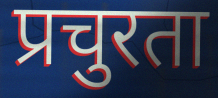
प्रचुरता